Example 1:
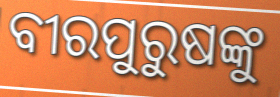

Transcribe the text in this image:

ବୀରପୁରୁଷଙ୍କୁ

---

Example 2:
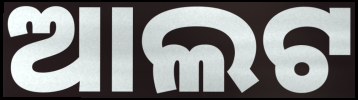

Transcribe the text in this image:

ଆଲଟ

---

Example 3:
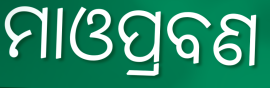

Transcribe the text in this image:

ମାଓପ୍ରବଣ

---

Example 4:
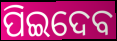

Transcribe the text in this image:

ପିଇଦେବ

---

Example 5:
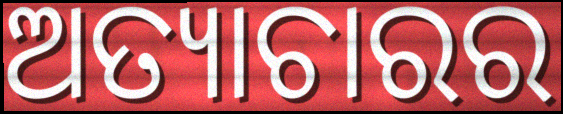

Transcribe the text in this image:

ଅତ୍ୟାଚାରର